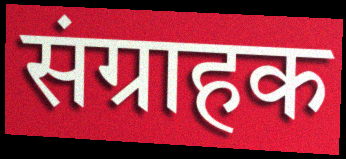
संग्राहक